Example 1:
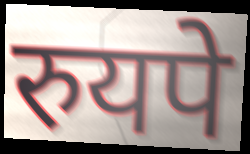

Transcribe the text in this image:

रुयपे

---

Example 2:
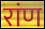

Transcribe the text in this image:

रांण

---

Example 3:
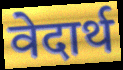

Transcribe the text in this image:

वेदार्थ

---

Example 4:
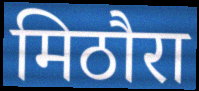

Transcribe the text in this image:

मिठौरा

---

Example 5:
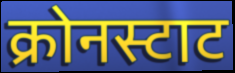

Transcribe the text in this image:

क्रोनस्टाट